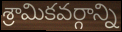
శ్రామికవర్గాన్ని